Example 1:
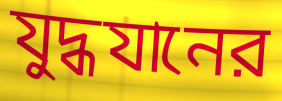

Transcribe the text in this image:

যুদ্ধযানের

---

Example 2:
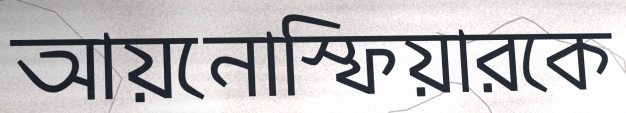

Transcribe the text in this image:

আয়নোস্ফিয়ারকে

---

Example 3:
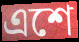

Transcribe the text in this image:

এশে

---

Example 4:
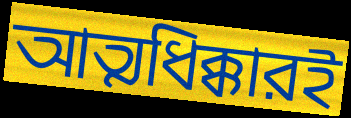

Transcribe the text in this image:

আত্মধিক্কারই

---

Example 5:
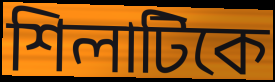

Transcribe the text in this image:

শিলাটিকে